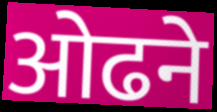
ओढने